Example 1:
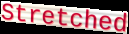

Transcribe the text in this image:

Stretched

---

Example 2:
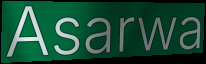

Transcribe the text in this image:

Asarwa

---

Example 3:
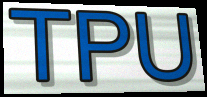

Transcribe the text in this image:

TPU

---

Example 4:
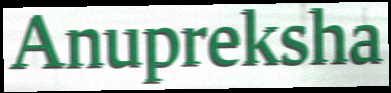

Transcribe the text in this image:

Anupreksha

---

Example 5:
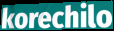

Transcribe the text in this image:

korechilo